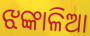
ଝଙ୍କାଳିଆ